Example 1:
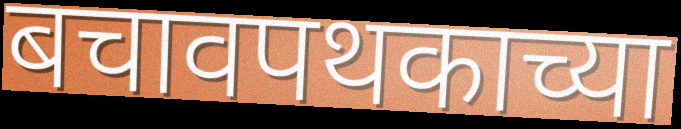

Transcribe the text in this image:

बचावपथकाच्या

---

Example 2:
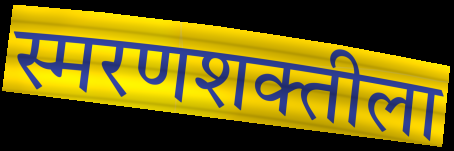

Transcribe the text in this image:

स्मरणशक्तीला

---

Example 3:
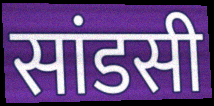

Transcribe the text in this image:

सांडसी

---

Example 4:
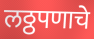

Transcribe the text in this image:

लठ्ठपणाचे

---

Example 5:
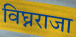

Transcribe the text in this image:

विघ्नराजा